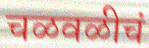
चळवळीचं